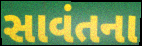
સાવંતના